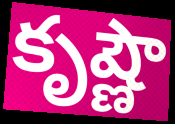
కృష్ణౌ